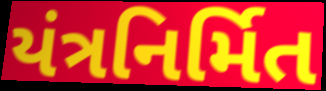
યંત્રનિર્મિત